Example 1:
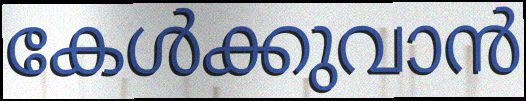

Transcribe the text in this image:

കേൾക്കുവാൻ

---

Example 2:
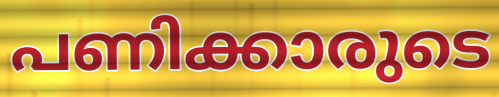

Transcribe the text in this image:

പണിക്കാരുടെ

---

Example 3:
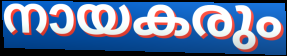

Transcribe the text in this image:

നായകരും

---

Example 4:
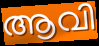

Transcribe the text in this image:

ആവി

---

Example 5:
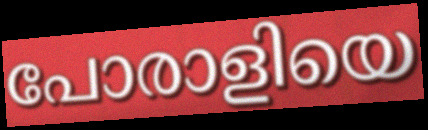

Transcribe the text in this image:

പോരാളിയെ